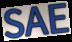
SAE